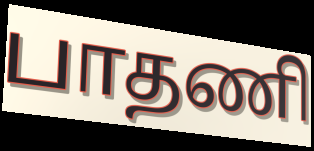
பாதணி